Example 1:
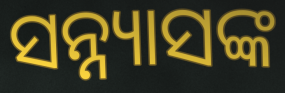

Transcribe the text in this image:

ସନ୍ନ୍ୟାସଙ୍କ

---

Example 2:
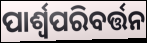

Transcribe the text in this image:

ପାର୍ଶ୍ଵପରିବର୍ତ୍ତନ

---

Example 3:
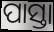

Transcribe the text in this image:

ପାସ୍ତା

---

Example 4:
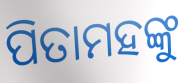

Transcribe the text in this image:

ପିତାମହଙ୍କୁ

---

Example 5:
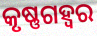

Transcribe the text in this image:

କୃଷ୍ଣଗହ୍ୱର